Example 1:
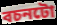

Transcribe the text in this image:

বচনটো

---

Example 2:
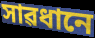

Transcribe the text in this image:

সাৱধানে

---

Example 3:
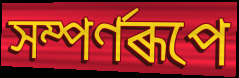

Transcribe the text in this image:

সম্পৰ্ণৰূপে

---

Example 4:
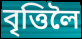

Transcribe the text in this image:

বৃত্তিলৈ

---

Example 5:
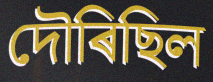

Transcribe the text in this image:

দৌৰিছিল